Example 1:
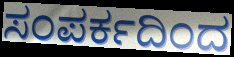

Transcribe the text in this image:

ಸಂಪರ್ಕದಿಂದ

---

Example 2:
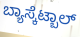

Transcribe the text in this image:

ಬ್ಯಾಸ್ಕೆಟ್ಬಾಲ್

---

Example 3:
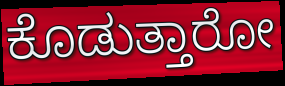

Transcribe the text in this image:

ಕೊಡುತ್ತಾರೋ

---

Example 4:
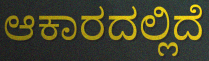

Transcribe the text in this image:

ಆಕಾರದಲ್ಲಿದೆ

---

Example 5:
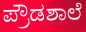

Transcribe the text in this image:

ಪ್ರೌಡಶಾಲೆ